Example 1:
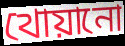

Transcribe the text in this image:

থোয়ানো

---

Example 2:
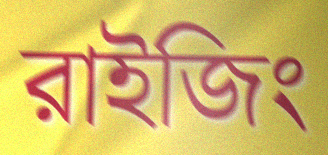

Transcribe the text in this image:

রাইজিং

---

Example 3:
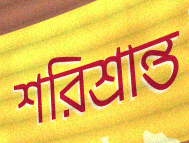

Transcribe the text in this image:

শরিশ্রান্ত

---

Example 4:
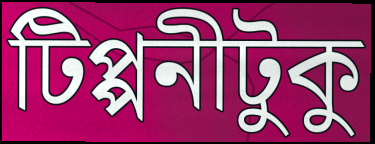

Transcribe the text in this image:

টিপ্পনীটুকু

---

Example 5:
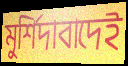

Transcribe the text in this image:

মুর্শিদাবাদেই